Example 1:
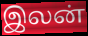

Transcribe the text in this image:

இலன்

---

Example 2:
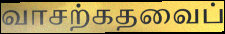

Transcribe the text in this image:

வாசற்கதவைப்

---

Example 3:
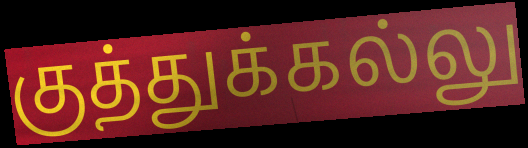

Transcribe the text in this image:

குத்துக்கல்லு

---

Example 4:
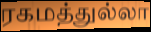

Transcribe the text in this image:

ரகமத்துல்லா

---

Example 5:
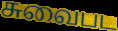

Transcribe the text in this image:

சுவைபட